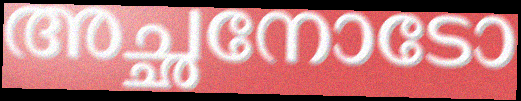
അച്ഛനോടോ